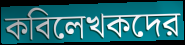
কবিলেখকদের